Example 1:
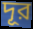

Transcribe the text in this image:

দূর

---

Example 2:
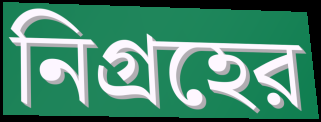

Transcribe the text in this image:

নিগ্রহের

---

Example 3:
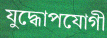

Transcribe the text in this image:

যুদ্ধোপযোগী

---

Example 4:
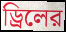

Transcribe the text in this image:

ড্রিলের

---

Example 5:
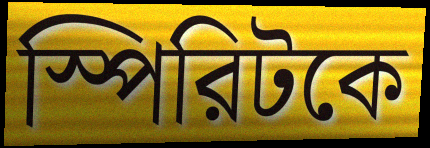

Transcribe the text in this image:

স্পিরিটকে